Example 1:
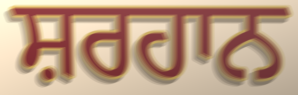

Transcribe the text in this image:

ਸ਼ਰਹਾਨ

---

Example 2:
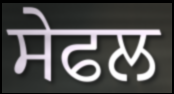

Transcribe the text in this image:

ਸੇਫਲ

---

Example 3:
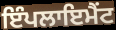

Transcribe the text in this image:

ਇੰਪਲਾਇਮੈਂਟ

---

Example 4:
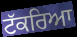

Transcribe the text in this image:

ਟੱਕਰਿਆ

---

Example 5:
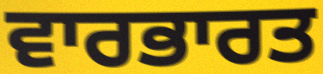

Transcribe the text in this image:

ਵਾਰਭਾਰਤ